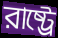
রাষ্ট্রে